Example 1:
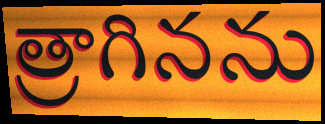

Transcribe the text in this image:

త్రాగినను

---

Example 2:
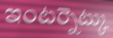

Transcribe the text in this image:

ఇంటర్నెట్కు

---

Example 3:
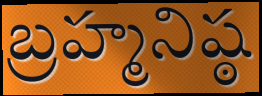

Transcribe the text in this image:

బ్రహ్మనిష్ఠ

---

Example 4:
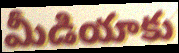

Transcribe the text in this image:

మీడియాకు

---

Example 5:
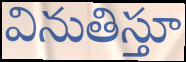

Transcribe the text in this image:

వినుతిస్తూ